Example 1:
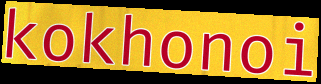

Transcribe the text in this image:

kokhonoi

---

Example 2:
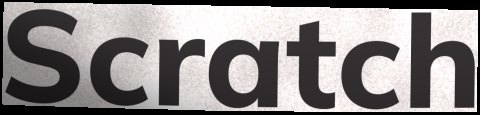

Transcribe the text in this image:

Scratch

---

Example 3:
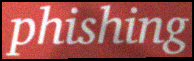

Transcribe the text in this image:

phishing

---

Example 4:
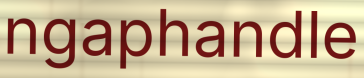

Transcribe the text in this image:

ngaphandle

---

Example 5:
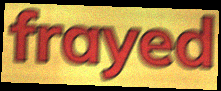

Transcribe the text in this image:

frayed